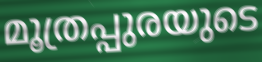
മൂത്രപ്പുരയുടെ